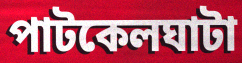
পাটকেলঘাটা